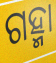
ଗହ୍ମା